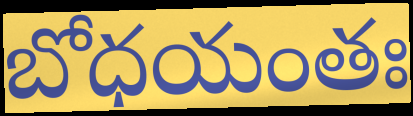
బోధయంతః